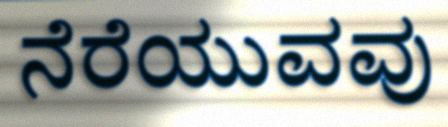
ನೆರೆಯುವವು